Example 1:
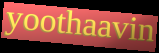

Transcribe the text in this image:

yoothaavin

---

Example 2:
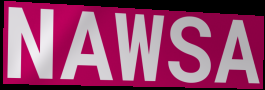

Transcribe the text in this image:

NAWSA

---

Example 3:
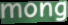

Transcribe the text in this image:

mong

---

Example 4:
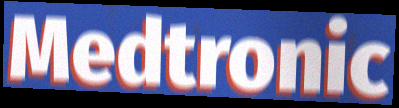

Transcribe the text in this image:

Medtronic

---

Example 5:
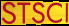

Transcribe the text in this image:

STSCI